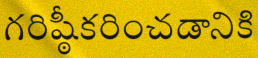
గరిష్ఠీకరించడానికి